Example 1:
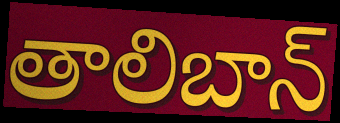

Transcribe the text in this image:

తాలిబాన్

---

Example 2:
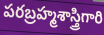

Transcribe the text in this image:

పరబ్రహ్మశాస్త్రిగారి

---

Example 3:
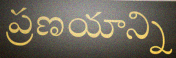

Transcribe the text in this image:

ప్రణయాన్ని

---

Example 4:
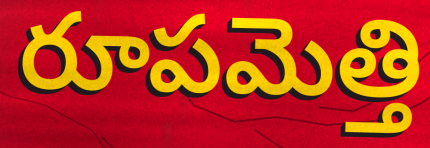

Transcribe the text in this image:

రూపమెత్తి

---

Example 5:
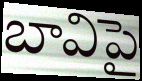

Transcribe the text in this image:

బావిపై